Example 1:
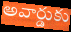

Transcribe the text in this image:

అవార్డుకు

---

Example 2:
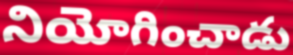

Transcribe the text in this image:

నియోగించాడు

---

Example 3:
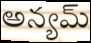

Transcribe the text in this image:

అన్యమ్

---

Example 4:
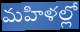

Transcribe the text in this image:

మహిళల్లో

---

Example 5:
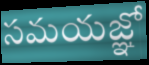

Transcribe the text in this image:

సమయజ్ఞో